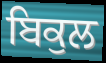
ਬਿਕੁਲ